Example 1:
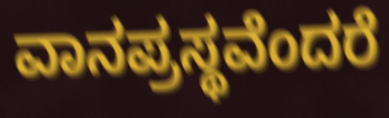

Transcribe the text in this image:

ವಾನಪ್ರಸ್ಥವೆಂದರೆ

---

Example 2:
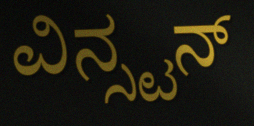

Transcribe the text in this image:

ವಿನ್ಸ್ಟನ್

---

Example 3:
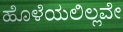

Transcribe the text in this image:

ಹೊಳೆಯಲಿಲ್ಲವೇ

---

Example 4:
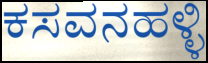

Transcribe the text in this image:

ಕಸವನಹಳ್ಳಿ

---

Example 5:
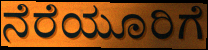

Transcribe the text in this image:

ನೆರೆಯೂರಿಗೆ